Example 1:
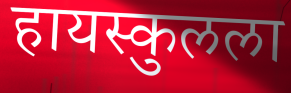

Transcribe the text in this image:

हायस्कुलला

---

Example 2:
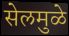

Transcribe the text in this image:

सेलमुळे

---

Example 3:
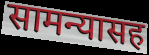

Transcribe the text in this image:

सामन्यासह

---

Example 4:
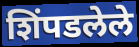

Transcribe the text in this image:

शिंपडलेले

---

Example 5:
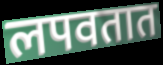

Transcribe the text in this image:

लपवतात